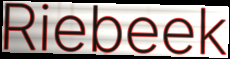
Riebeek